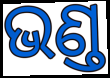
ଭଣ୍ଡ